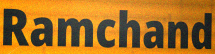
Ramchand